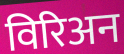
विरिअन